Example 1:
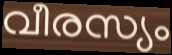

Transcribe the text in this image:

വീരസ്യം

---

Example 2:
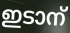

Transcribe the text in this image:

ഇടാന്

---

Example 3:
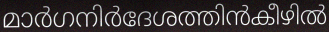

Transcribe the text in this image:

മാർഗനിർദേശത്തിൻകീഴിൽ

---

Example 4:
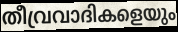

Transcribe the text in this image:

തീവ്രവാദികളെയും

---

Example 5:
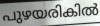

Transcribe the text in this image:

പുഴയരികിൽ